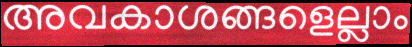
അവകാശങ്ങളെല്ലാം